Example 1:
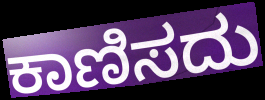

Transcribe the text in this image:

ಕಾಣಿಸದು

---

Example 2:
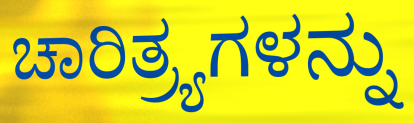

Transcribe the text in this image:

ಚಾರಿತ್ರ್ಯಗಳನ್ನು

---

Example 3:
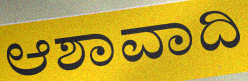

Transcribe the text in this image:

ಆಶಾವಾದಿ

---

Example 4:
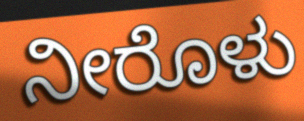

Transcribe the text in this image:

ನೀರೊಳು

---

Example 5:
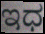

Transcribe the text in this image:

ಇಧ